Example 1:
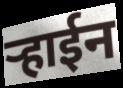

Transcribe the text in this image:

ऱ्हाईन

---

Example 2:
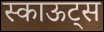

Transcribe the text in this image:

स्काऊट्स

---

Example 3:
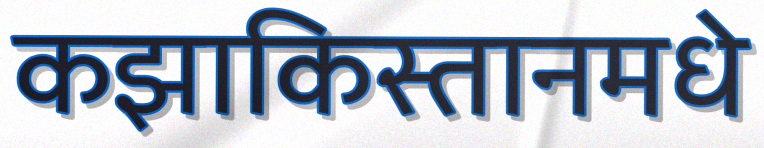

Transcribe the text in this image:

कझाकिस्तानमधे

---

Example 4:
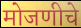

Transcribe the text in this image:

मोजणीचे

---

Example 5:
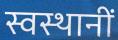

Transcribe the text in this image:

स्वस्थानीं